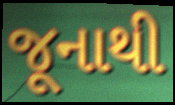
જૂનાથી